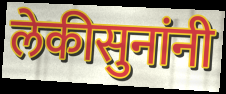
लेकीसुनांनी